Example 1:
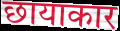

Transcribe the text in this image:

छायाकार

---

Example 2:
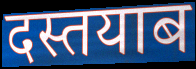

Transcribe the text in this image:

दस्तयाब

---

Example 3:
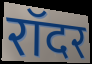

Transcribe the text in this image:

रॉदर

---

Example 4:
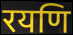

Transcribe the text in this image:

रयणि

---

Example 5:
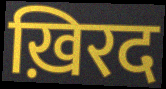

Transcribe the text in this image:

ख़िरद